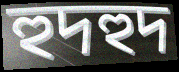
হুদহুদ